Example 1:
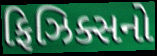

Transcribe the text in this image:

ફિઝિક્સનો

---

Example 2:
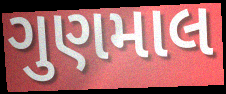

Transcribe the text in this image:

ગુણમાલ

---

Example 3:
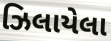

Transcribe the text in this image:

ઝિલાયેલા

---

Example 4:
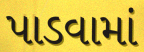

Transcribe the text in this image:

પાડવામાં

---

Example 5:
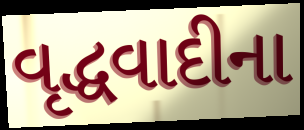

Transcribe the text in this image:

વૃદ્ધવાદીના